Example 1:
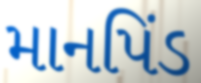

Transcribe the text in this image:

માનપિંડ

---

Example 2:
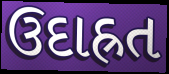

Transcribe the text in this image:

ઉદાહ્રત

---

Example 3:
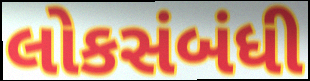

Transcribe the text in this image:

લોકસંબંધી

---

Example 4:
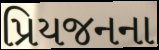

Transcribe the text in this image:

પ્રિયજનના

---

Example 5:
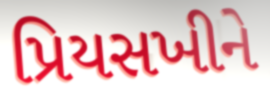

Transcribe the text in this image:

પ્રિયસખીને